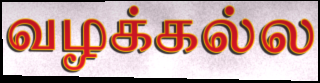
வழக்கல்ல